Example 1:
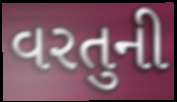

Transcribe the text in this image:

વરતુની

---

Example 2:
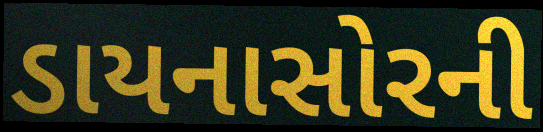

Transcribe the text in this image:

ડાયનાસોરની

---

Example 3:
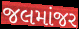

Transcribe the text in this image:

જલમાંજર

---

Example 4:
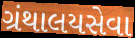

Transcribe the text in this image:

ગ્રંથાલયસેવા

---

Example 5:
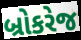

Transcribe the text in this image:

બ્રોકરેજ